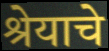
श्रेयाचे